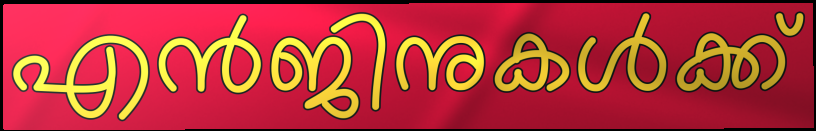
എൻജിനുകൾക്ക്